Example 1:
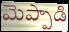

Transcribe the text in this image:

మెప్పాడి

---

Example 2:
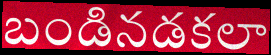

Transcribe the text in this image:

బండినడకలా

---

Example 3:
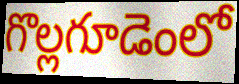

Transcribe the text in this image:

గొల్లగూడెంలో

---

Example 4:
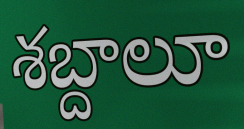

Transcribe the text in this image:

శబ్దాలూ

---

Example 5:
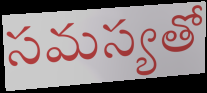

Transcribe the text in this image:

సమస్యతో